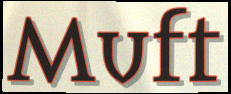
Muft